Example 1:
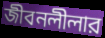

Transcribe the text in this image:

জীবনলীলার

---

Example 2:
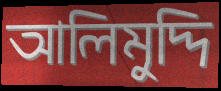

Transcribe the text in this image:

আলিমুদ্দি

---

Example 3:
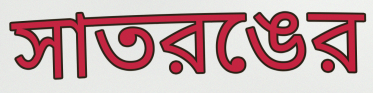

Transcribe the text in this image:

সাতরঙের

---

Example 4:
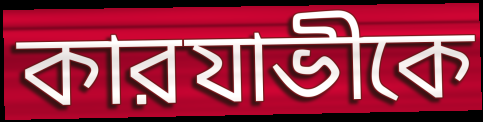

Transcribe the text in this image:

কারযাভীকে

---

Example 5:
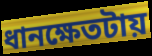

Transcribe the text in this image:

ধানক্ষেতটায়